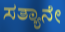
ಸತ್ಯಾನೇ